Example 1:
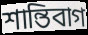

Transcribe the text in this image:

শান্তিবাগ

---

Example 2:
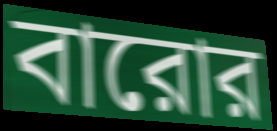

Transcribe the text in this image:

বারোর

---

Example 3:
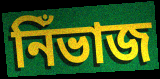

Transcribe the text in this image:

নিঁভাজ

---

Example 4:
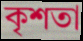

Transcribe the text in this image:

কৃশতা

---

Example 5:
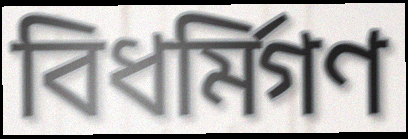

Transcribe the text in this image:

বিধর্মিগণ